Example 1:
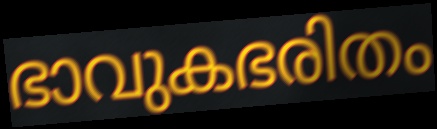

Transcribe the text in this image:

ഭാവുകഭരിതം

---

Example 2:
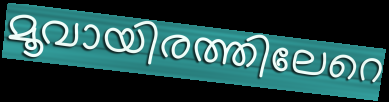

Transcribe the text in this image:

മൂവായിരത്തിലേറെ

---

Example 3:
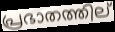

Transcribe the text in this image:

പ്രഭാതത്തില്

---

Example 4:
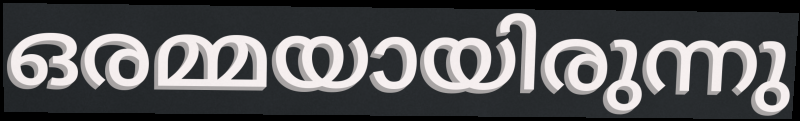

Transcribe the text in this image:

ഒരമ്മയായിരുന്നു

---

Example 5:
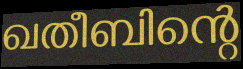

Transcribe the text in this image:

ഖതീബിന്റെ